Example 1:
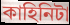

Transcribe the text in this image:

কাহিনিটা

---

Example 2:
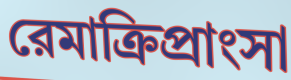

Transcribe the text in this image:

রেমাক্রিপ্রাংসা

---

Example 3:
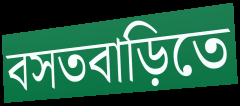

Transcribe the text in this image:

বসতবাড়িতে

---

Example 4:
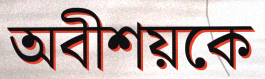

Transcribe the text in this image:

অবীশয়কে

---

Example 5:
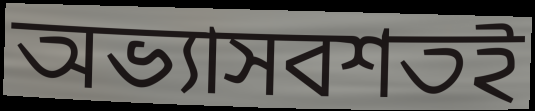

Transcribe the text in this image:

অভ্যাসবশতই